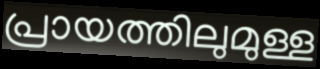
പ്രായത്തിലുമുള്ള